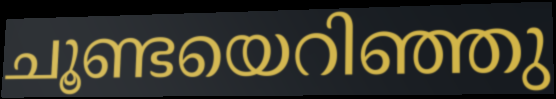
ചൂണ്ടയെറിഞ്ഞു